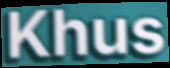
Khus